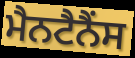
ਮੈਨਟੈਨੈਂਸ